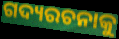
ଗଦ୍ୟରଚନାକୁ